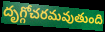
దృగ్గోచరమవుతుంది